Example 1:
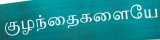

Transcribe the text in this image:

குழந்தைகளையே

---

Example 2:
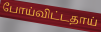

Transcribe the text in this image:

போய்விட்டதாய்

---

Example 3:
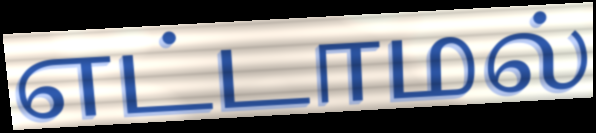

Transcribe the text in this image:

எட்டாமல்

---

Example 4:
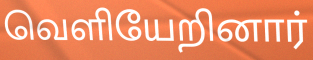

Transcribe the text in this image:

வெளியேறினார்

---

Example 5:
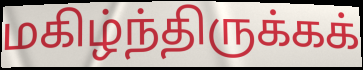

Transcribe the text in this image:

மகிழ்ந்திருக்கக்